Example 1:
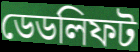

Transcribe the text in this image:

ডেডলিফট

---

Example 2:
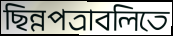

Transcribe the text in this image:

ছিন্নপত্রাবলিতে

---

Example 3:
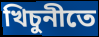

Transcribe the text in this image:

খিচুনীতে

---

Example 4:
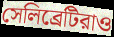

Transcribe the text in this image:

সেলিব্রেটিরাও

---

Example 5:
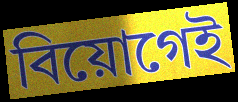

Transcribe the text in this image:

বিয়োগেই